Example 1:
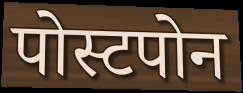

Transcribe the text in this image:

पोस्टपोन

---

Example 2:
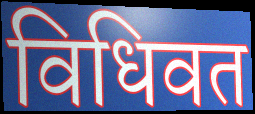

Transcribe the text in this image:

विधिवत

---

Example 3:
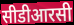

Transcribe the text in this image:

सीडीआरसी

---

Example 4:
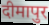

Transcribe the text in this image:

दीमापुर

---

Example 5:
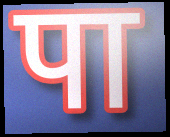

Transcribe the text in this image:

पा